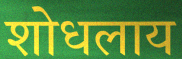
शोधलाय